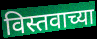
विस्तवाच्या